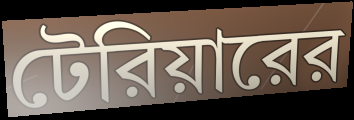
টেরিয়ারের